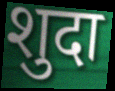
शुदा